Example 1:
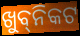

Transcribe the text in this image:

ଖୁବ୍‌ନିକଟ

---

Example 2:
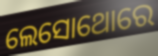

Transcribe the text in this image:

ଲେସୋଥୋରେ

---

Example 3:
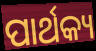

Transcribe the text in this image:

ପାର୍ଥକ୍ୟ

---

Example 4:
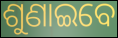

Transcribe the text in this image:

ଶୁଣାଇବେ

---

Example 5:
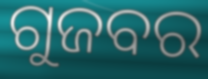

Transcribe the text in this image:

ଗୁଜବର